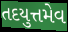
તદયુત્તમેવ